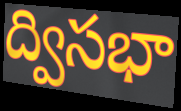
ద్విసభా